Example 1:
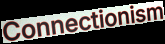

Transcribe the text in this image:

Connectionism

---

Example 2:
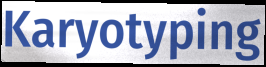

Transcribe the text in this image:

Karyotyping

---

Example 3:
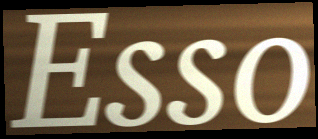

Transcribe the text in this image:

Esso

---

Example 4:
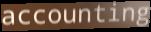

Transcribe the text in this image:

accounting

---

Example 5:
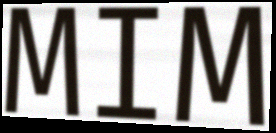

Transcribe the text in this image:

MIM